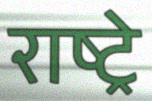
राष्ट्रे